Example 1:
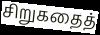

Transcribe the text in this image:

சிறுகதைத்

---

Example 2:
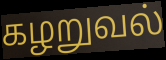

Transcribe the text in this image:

கழறுவல்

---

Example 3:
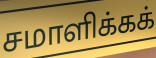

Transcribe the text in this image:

சமாளிக்கக்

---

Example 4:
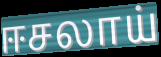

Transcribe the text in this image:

ஈசலாய்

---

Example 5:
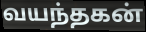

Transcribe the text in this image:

வயந்தகன்